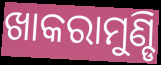
ଖାକରାମୁଣ୍ଡି